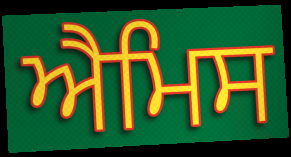
ਐਮਿਸ